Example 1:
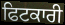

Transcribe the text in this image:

ਫਿਟਕਾਰੀ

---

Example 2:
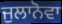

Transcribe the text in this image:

ਜੁਲਾਨੋਵਾ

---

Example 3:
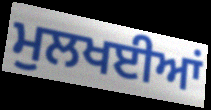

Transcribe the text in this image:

ਮੁਲਖਈਆਂ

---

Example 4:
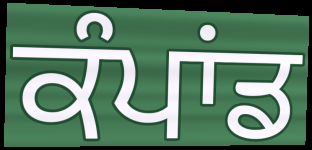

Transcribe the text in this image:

ਕੰਪਾਂਡ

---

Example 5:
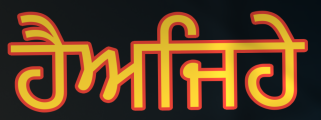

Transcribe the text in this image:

ਹੈਅਜਿਹੇ